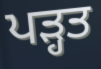
ਪਡ਼੍ਹਤ